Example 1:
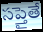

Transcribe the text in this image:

సప్తైతే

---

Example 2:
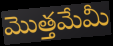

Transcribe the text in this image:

మొత్తమేమీ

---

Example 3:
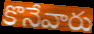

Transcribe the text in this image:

కొనేవారు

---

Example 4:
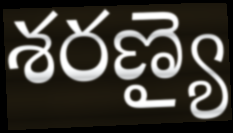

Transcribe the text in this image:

శరణ్యై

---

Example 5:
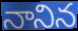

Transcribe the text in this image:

నానిన